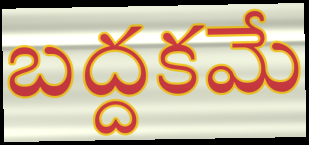
బద్దకమే